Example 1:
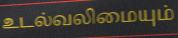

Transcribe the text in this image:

உடல்வலிமையும்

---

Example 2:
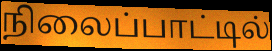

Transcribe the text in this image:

நிலைப்பாட்டில்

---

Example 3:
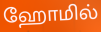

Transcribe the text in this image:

ஹோமில்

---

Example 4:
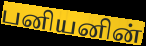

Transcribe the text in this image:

பனியனின்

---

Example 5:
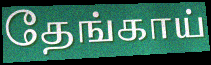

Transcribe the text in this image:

தேங்காய்